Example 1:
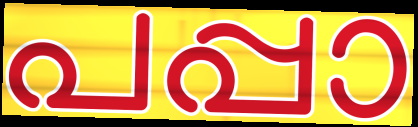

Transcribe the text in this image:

പപ്പാ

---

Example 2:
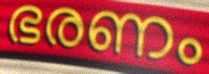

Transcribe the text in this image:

ഭരണം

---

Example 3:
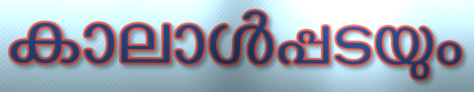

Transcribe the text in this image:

കാലാൾപ്പടയും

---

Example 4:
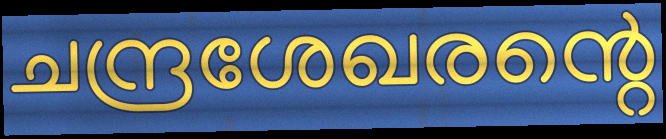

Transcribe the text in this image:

ചന്ദ്രശേഖരന്റെ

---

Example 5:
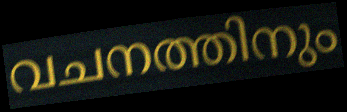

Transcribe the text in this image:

വചനത്തിനും